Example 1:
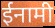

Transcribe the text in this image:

ईनामी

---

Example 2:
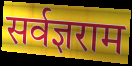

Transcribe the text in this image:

सर्वज्ञराम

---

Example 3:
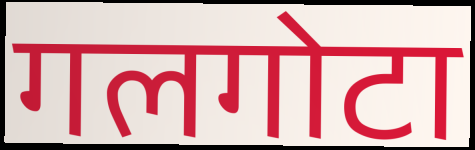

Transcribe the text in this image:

गलगोटा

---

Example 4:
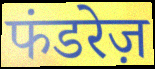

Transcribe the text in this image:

फंडरेज़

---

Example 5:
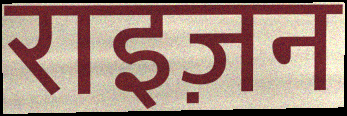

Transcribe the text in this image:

राइज़न